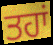
ਤਹਾਂ